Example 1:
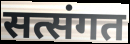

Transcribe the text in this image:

सत्संगत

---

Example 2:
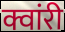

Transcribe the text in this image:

क्वांरी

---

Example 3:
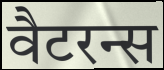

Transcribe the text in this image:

वैटरन्स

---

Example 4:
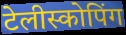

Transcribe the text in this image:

टेलीस्कोपिंग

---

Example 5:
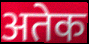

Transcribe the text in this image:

अतेक